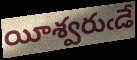
యీశ్వరుఁడే